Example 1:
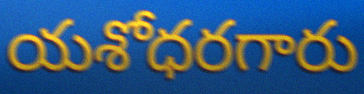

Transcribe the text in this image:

యశోధరగారు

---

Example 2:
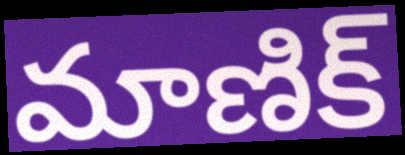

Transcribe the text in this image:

మాణిక్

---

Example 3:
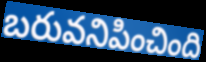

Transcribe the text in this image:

బరువనిపించింది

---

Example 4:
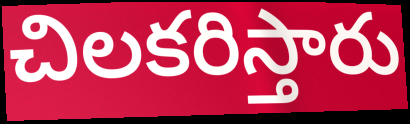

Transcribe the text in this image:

చిలకరిస్తారు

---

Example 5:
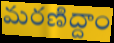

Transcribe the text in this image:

మరణిద్దాం